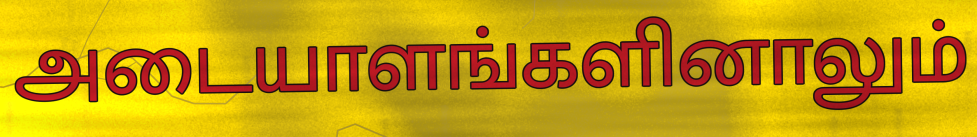
அடையாளங்களினாலும்